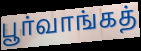
பூர்வாங்கத்